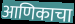
आणिकाचा